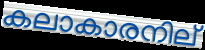
കലാകാരനില്